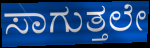
ಸಾಗುತ್ತಲೇ